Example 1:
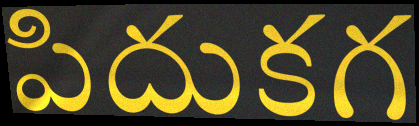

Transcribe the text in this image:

పిదుకగ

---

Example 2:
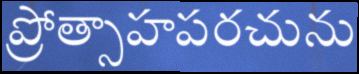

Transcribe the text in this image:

ప్రోత్సాహపరచును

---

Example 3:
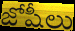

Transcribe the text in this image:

జోషీలు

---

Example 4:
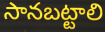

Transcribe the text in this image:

సానబట్టాలి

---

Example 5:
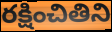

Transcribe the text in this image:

రక్షించితిని